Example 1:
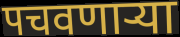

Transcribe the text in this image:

पचवणाऱ्या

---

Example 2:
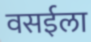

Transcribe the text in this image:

वसईला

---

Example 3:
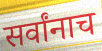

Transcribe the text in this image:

सर्वांनाच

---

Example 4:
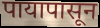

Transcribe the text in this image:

पायापासून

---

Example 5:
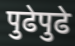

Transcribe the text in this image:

पुढेपुढे